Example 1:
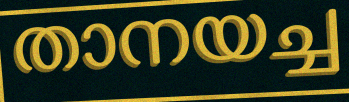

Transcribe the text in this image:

താനയച്ച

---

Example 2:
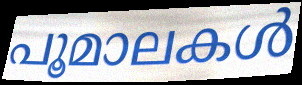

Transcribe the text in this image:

പൂമാലകൾ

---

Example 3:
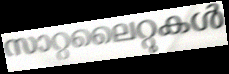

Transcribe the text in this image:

സാറ്റലൈറ്റുകൾ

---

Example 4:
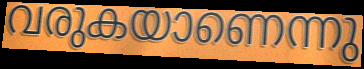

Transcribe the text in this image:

വരുകയാണെന്നു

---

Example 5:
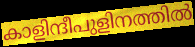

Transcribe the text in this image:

കാളിന്ദീപുളിനത്തിൽ